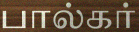
பால்கர்